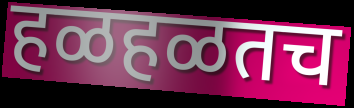
हळहळतच